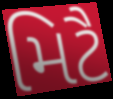
મિટૈ